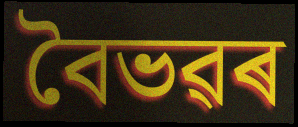
বৈভৱৰ